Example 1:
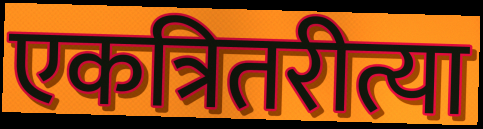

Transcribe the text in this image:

एकत्रितरीत्या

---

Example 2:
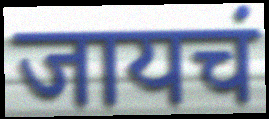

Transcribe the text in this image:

जायचं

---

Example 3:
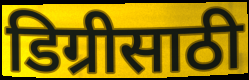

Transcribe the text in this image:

डिग्रीसाठी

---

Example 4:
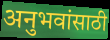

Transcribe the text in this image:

अनुभवांसाठी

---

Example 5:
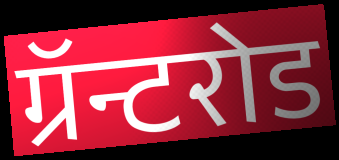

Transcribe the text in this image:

ग्रॅन्टरोड